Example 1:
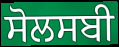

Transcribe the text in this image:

ਸੋਲਸਬੀ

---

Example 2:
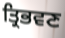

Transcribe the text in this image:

ਤ੍ਰਿਭਵਣ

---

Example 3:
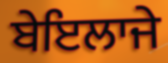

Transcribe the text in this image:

ਬੇਇਲਾਜੇ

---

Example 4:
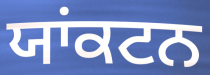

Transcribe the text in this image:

ਯਾਂਕਟਨ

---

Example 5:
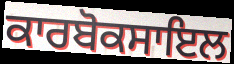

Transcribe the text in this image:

ਕਾਰਬੋਕਸਾਇਲ